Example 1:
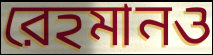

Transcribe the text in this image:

রেহমানও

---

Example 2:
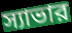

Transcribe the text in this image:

স্যাভার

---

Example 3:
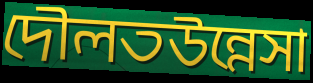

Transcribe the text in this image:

দৌলতউন্নেসা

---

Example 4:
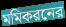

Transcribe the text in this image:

মমিকরনের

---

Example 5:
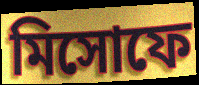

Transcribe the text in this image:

মিসোফে